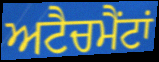
ਅਟੈਚਮੈਂਟਾਂ